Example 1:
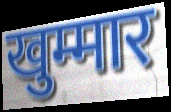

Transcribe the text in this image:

खुम्मार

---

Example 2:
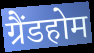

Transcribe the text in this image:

ग्रैंडहोम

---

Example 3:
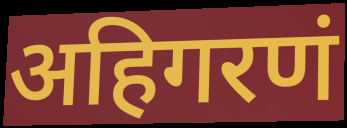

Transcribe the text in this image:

अहिगरणं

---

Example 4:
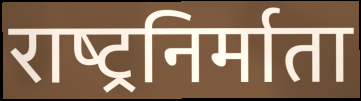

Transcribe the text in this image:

राष्ट्रनिर्माता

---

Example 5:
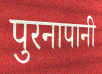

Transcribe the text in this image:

पुरनापानी